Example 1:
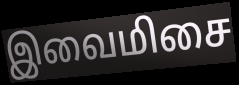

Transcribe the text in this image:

இவைமிசை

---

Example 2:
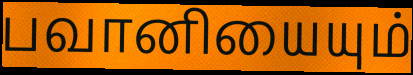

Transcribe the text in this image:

பவானியையும்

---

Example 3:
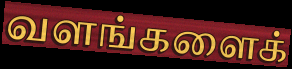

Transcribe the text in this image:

வளங்களைக்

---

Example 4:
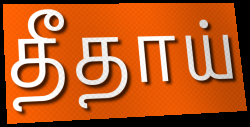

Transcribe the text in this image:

தீதாய்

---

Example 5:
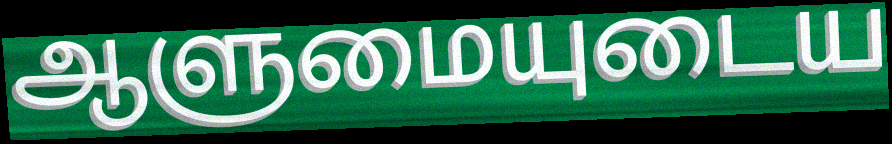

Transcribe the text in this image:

ஆளுமையுடைய